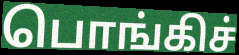
பொங்கிச்